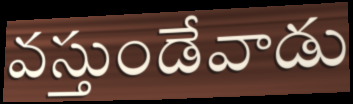
వస్తుండేవాడు